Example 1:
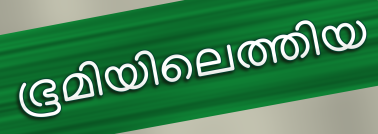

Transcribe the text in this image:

ഭൂമിയിലെത്തിയ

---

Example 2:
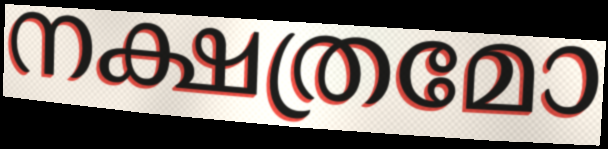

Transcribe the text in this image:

നക്ഷത്രമോ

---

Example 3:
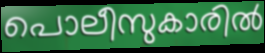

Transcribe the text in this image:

പൊലീസുകാരിൽ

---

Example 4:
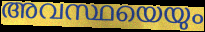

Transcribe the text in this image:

അവസ്ഥയെയും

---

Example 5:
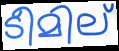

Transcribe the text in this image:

ടീമില്